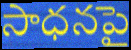
సాధనపై